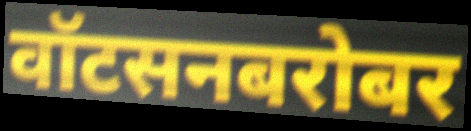
वॉटसनबरोबर